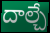
దాల్చే